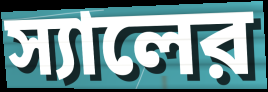
স্যালের